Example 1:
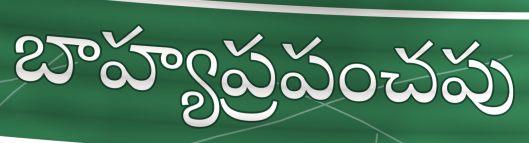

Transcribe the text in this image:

బాహ్యప్రపంచపు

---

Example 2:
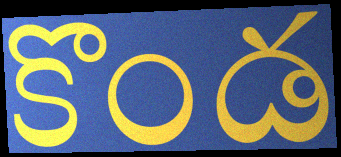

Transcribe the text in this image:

కొండ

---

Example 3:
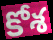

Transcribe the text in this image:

కోశ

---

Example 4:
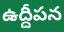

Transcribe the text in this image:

ఉద్దీపన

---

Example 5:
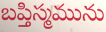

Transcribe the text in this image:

బప్తిస్మమును